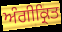
ਅੰਗੀਕ੍ਰਿਤ